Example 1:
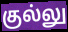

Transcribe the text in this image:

குல்லு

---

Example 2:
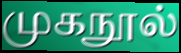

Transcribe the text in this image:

முகநூல்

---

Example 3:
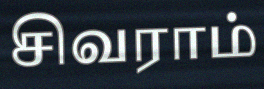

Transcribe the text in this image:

சிவராம்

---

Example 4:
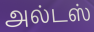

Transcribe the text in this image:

அல்டஸ்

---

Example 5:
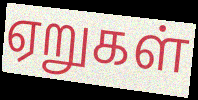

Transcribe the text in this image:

ஏறுகள்